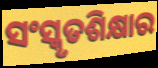
ସଂସ୍କୃତଶିକ୍ଷାର